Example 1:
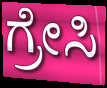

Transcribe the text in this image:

ಗ್ರೇಸಿ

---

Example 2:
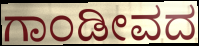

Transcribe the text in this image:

ಗಾಂಡೀವದ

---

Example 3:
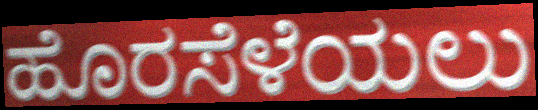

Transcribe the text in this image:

ಹೊರಸೆಳೆಯಲು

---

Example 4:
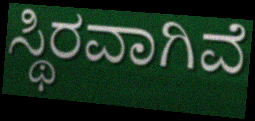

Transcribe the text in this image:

ಸ್ಥಿರವಾಗಿವೆ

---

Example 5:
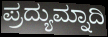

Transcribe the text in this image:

ಪ್ರದ್ಯುಮ್ನಾದಿ